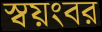
স্বয়ংবর